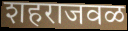
शहराजवळ